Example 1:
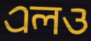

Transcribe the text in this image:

এলও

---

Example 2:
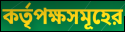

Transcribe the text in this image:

কর্তৃপক্ষসমূহের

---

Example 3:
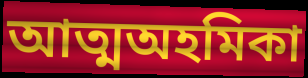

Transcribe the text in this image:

আত্মঅহমিকা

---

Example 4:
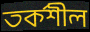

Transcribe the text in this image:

তর্কশীল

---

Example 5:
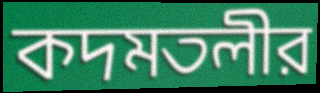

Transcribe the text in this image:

কদমতলীর